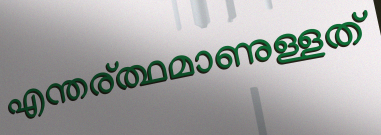
എന്തര്ത്ഥമാണുള്ളത്